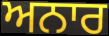
ਅਨਾਰ